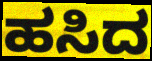
ಹಸಿದ